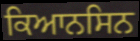
ਕਿਆਨਸਿਨ